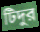
টিদুর